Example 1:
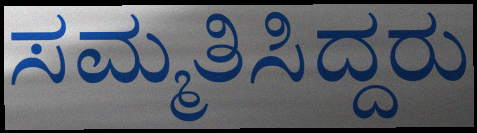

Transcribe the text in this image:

ಸಮ್ಮತಿಸಿದ್ದರು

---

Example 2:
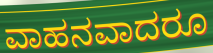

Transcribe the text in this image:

ವಾಹನವಾದರೂ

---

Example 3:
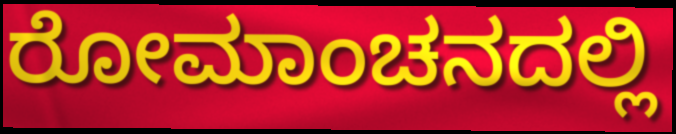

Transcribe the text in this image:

ರೋಮಾಂಚನದಲ್ಲಿ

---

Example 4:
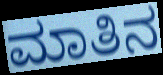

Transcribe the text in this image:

ಮಾತಿನ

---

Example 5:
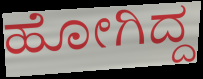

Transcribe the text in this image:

ಹೋಗಿದ್ದ